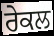
ਰੇਕਲ